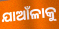
ଯାଆଁଳାକୁ